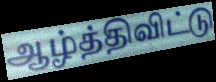
ஆழ்த்திவிட்டு